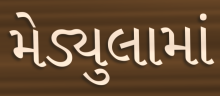
મેડ્યુલામાં